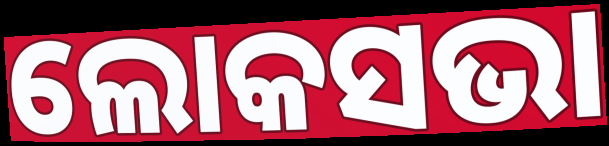
ଲୋକସଭା